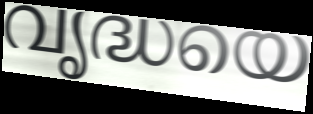
വൃദ്ധയെ